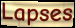
Lapses